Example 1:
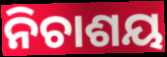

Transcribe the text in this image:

ନିଚାଶୟ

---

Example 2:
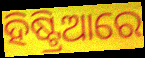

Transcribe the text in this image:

ହିଷ୍ଟ୍ରିଆରେ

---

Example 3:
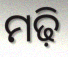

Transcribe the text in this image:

ମଢ଼ି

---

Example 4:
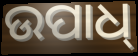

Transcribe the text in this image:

ଉପାଧ୍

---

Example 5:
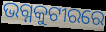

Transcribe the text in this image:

ଭଗ୍ନକୁଟୀରରେ